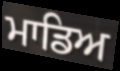
ਮਾਡਿਅ